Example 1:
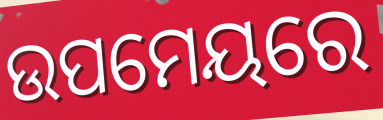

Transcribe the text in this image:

ଉପମେୟରେ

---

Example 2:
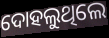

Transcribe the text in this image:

ଦୋହଲୁଥିଲେ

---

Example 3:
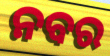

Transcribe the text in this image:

ନବର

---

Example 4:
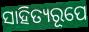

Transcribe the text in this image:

ସାହିତ୍ୟରୂପେ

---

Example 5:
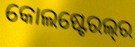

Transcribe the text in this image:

କୋଲଷ୍ଟେରଲ୍‌ର